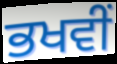
ਭਖਵੀਂ